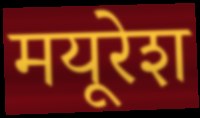
मयूरेश